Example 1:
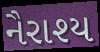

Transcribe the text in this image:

નૈરાશ્ય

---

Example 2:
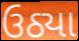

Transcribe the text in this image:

ઉઠ્યા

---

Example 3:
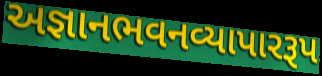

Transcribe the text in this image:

અજ્ઞાનભવનવ્યાપારરૂપ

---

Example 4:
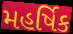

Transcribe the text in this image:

મહર્ષિક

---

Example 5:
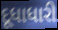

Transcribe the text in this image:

દૂધાધારી